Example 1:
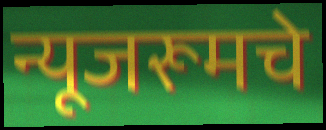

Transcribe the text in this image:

न्यूजरूमचे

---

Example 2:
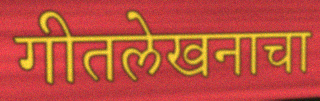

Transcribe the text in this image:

गीतलेखनाचा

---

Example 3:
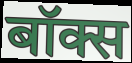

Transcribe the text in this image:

बॉक्स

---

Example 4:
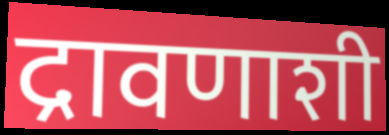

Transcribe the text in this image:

द्रावणाशी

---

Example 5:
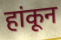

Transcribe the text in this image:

हांकून